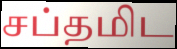
சப்தமிட